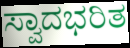
ಸ್ವಾದಭರಿತ